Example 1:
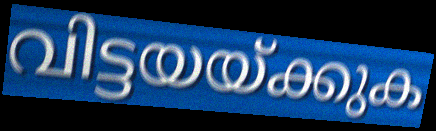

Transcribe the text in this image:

വിട്ടയയ്ക്കുക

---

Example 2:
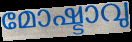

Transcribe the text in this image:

മോഷ്ടാവു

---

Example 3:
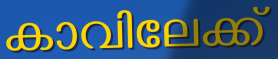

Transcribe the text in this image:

കാവിലേക്ക്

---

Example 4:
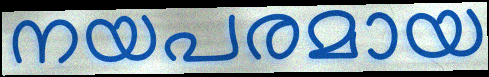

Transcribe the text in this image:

നയപരമായ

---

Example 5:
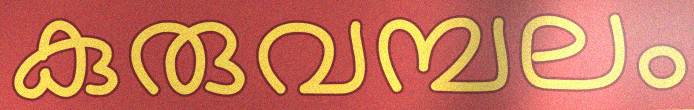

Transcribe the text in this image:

കുരുവമ്പലം